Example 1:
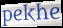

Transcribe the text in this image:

pekhe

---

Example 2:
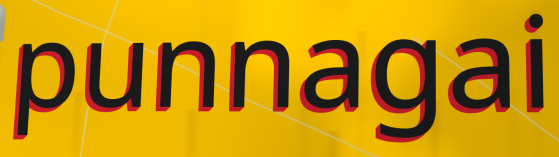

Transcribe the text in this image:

punnagai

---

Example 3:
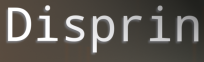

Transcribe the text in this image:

Disprin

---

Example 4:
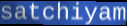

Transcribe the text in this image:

satchiyam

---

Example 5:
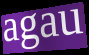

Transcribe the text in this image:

agau